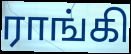
ராங்கி